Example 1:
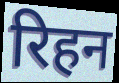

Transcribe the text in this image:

रिहन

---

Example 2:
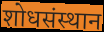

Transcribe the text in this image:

शोधसंस्थान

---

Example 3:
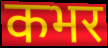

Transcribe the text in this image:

कभर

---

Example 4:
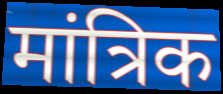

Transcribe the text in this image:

मांत्रिक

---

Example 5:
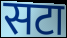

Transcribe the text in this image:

सटा